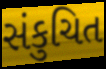
સંકુચિત